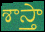
శాస్తా